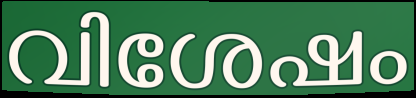
വിശേഷം